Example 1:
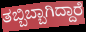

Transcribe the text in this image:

ತಬ್ಬಿಬ್ಬಾಗಿದ್ದಾರೆ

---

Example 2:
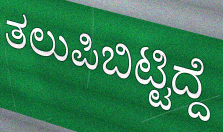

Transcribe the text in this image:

ತಲುಪಿಬಿಟ್ಟಿದ್ದೆ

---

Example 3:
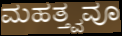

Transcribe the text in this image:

ಮಹತ್ತ್ವವೂ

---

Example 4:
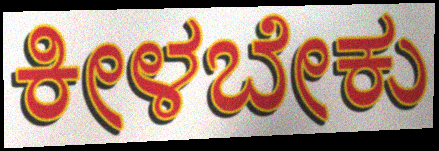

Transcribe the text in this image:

ಕೀಳಬೇಕು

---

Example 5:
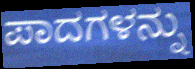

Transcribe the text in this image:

ಪಾದಗಳನ್ನು